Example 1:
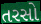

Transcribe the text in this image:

તરસો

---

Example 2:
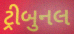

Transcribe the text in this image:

ટ્રીબુનલ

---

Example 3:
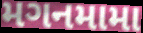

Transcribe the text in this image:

મગનમામા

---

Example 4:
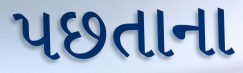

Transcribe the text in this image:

પછતાના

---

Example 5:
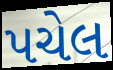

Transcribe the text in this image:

પચેલ